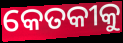
କେତକୀକୁ